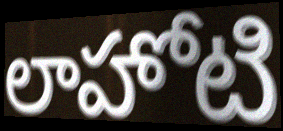
లాహోటి